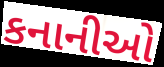
કનાનીઓ